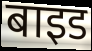
बाइड